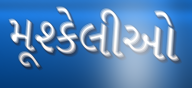
મૂશ્કેલીઓ